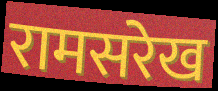
रामसरेख